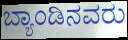
ಬ್ಯಾಂಡಿನವರು